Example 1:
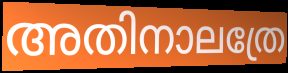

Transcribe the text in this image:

അതിനാലത്രേ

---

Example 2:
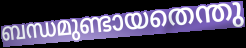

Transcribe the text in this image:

ബന്ധമുണ്ടായതെന്തു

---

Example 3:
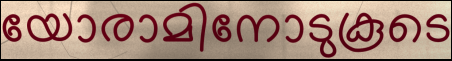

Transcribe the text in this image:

യോരാമിനോടുകൂടെ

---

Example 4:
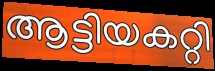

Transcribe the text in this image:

ആട്ടിയകറ്റി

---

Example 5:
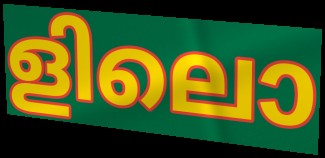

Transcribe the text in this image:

ളിലൊ